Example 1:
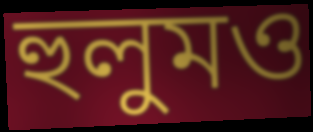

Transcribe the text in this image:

হুলুমও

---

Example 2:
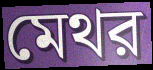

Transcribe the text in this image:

মেথর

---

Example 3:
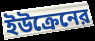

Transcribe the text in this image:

ইউক্রেনের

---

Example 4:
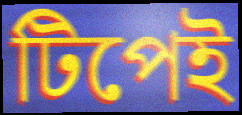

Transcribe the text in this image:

টিপেই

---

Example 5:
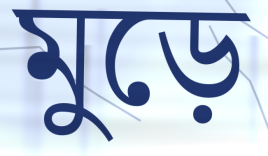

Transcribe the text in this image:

মুড়ে